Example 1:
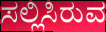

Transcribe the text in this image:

ಸಲ್ಲಿಸಿರುವ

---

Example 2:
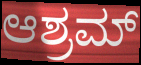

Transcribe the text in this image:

ಆಶ್ರಮ್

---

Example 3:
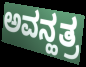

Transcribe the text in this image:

ಅವನ್ಹತ್ರ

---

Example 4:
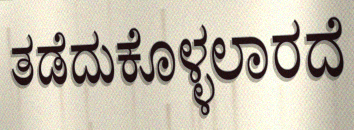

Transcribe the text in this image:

ತಡೆದುಕೊಳ್ಳಲಾರದೆ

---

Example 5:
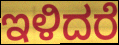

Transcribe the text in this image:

ಇಳಿದರೆ